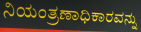
ನಿಯಂತ್ರಣಾಧಿಕಾರವನ್ನು